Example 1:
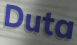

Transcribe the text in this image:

Duta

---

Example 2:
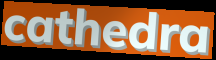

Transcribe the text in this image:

cathedra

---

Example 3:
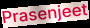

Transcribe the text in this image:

Prasenjeet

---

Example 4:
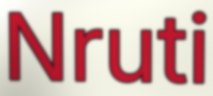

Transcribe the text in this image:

Nruti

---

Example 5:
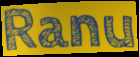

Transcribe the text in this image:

Ranu